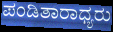
ಪಂಡಿತಾರಾಧ್ಯರು